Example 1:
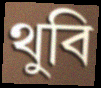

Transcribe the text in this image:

থুবি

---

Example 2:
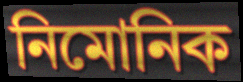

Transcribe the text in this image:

নিমোনিক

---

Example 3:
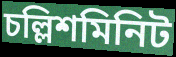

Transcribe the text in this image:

চল্লিশমিনিট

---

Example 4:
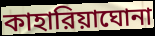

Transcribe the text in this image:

কাহারিয়াঘোনা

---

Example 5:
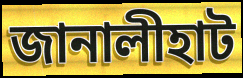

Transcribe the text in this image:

জানালীহাট